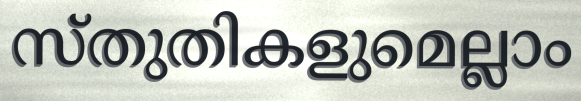
സ്തുതികളുമെല്ലാം